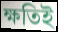
ক্ষতিই